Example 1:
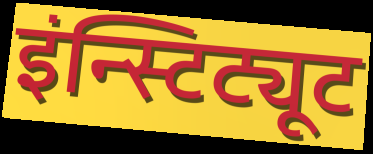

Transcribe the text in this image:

इंन्स्टिट्यूट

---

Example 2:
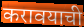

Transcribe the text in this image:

करावयाची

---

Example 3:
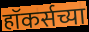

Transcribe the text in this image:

हॉकर्सच्या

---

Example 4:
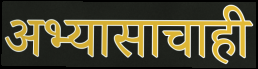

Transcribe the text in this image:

अभ्यासाचाही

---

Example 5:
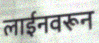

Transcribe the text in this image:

लाईनवरून